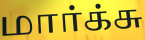
மார்க்சு